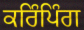
ਕਰਿੰਪਿੰਗ